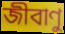
জীবাণু